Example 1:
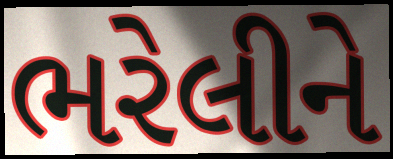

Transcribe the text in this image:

ભરેલીને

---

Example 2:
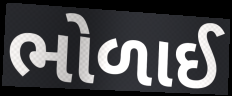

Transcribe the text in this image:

ભોળાઈ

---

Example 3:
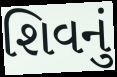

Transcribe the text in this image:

શિવનું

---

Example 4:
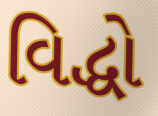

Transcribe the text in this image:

વિદ્ધો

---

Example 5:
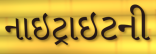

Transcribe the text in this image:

નાઇટ્રાઇટની